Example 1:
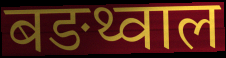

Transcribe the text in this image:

बङथ्वाल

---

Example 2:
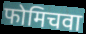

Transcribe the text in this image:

फोमिचवा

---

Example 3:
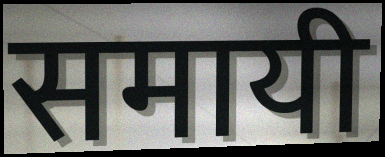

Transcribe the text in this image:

समायी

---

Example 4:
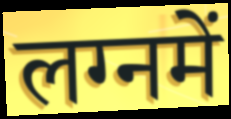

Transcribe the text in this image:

लग्नमें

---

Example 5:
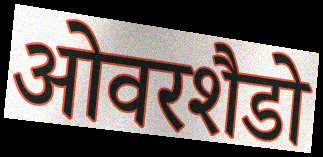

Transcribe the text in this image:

ओवरशैडो